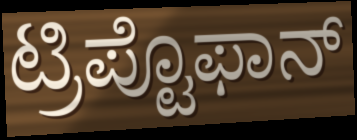
ಟ್ರಿಪ್ಟೊಫಾನ್